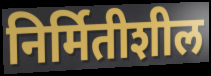
निर्मितीशील